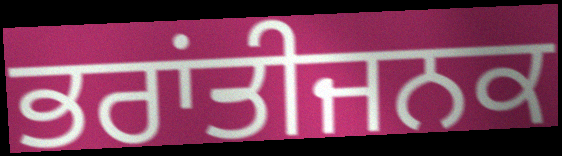
ਭਰਾਂਤੀਜਨਕ